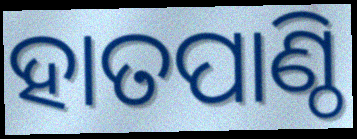
ହାତପାଣ୍ଠି